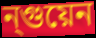
ন্গুয়েন